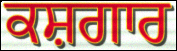
ਕਸ਼ਗਾਰ